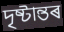
দৃষ্টান্তৰ